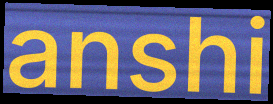
anshi